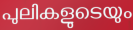
പുലികളുടെയും